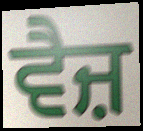
ਵੈਜ਼